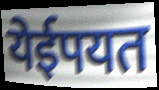
येईपयत